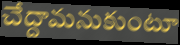
చేద్దామనుకుంటూ